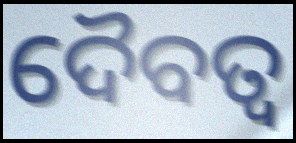
ଦୈବତ୍ଵ